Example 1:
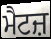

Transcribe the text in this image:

ਮੈਟਜ਼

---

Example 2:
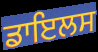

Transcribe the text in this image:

ਡਾਇਲਸ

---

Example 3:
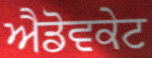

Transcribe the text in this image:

ਐਡੋਵਕੇਟ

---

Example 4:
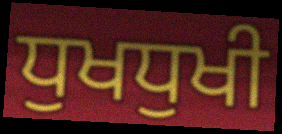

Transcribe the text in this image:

ਧੁਖਧੁਖੀ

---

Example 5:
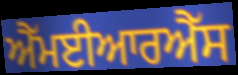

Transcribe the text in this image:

ਐੱਮਈਆਰਐੱਸ